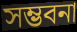
সম্ভবনা